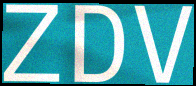
ZDV